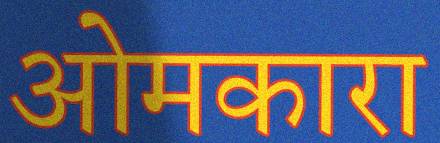
ओमकारा